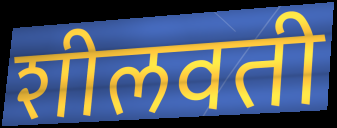
शीलवती